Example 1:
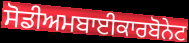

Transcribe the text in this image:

ਸੋਡੀਅਮਬਾਈਕਾਰਬੋਨੇਟ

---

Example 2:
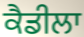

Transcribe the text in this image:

ਕੈਡੀਲਾ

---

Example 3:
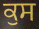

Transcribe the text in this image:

ਕੁਸ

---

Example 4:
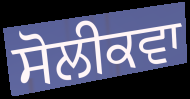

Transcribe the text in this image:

ਸੋਲੀਕਵਾ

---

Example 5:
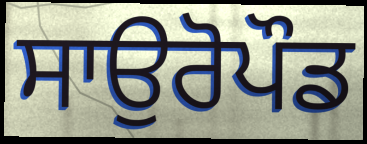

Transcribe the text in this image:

ਸਾਉਰੋਪੌਡ